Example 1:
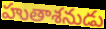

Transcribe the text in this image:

హుతాశనుడు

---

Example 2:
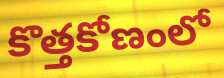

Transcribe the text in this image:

కొత్తకోణంలో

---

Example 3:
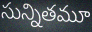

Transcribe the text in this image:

సున్నితమూ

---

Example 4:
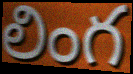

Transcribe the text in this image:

లింగ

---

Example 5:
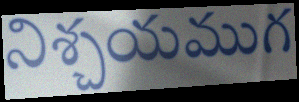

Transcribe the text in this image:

నిశ్చయముగ